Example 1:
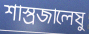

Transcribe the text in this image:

শাস্ত্রজালেষু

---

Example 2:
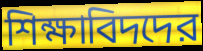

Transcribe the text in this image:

শিক্ষাবিদদের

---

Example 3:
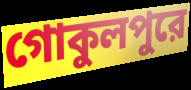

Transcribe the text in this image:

গোকুলপুরে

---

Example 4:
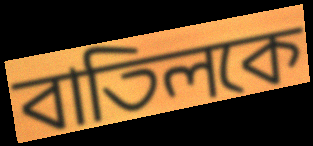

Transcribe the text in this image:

বাতিলকে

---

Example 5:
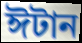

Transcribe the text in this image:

ঈটান